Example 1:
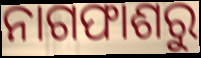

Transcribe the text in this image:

ନାଗଫାଶରୁ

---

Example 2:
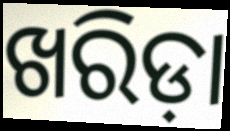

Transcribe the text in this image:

ଖରିଡ଼ା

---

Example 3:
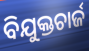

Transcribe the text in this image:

ବିଯୁକ୍ତଚାର୍ଜ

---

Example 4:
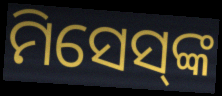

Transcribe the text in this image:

ମିସେସ୍‍ଙ୍କ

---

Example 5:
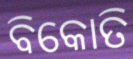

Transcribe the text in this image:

ବିକୋତି